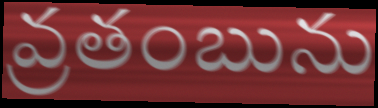
వ్రతంబును